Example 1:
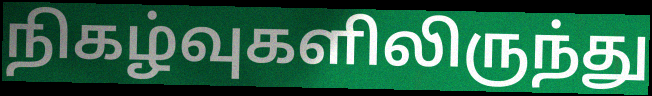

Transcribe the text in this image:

நிகழ்வுகளிலிருந்து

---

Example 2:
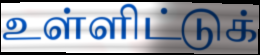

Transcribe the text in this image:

உள்ளிட்டுக்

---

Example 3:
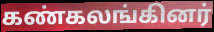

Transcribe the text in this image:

கண்கலங்கினர்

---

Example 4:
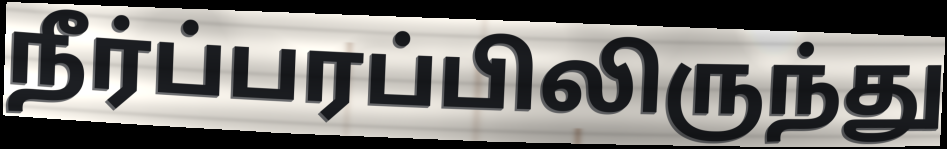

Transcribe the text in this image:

நீர்ப்பரப்பிலிருந்து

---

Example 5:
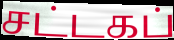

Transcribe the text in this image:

சட்டகப்